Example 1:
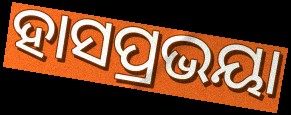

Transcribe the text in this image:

ହାସପ୍ରଭୟା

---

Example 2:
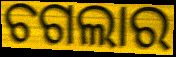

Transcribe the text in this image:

ଚଗଲାର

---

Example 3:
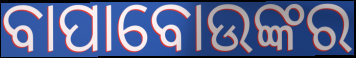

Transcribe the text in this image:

ବାପାବୋଉଙ୍କର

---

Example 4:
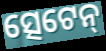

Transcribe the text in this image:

ତ୍ସେଟେନ୍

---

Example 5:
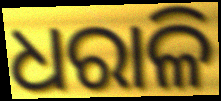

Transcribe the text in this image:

ଧରାଳି